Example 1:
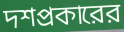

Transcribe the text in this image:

দশপ্রকারের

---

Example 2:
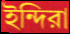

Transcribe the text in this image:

ইন্দিরা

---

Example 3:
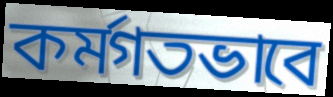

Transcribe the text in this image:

কর্মগতভাবে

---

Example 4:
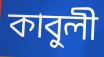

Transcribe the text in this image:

কাবুলী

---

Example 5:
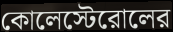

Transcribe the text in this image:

কোলেস্টেরোলের